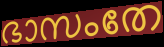
ഭാസംതേ